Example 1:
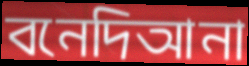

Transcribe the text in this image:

বনেদিআনা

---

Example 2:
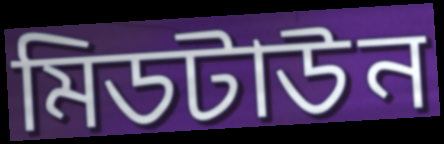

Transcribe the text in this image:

মিডটাউন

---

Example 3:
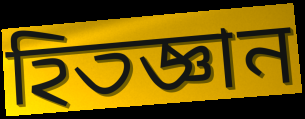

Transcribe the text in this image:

হিতজ্ঞান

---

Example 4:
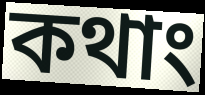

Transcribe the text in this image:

কথাং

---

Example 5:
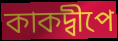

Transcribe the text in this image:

কাকদ্বীপে